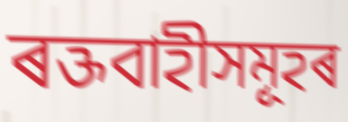
ৰক্তবাহীসমূহৰ